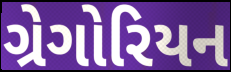
ગ્રેગોરિયન